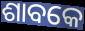
ଶାବକେ